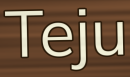
Teju